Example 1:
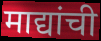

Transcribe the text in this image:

माद्यांची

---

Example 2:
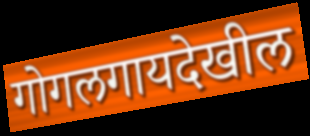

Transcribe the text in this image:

गोगलगायदेखील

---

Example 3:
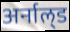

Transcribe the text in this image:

अर्नाल्ड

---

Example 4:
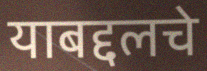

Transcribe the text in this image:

याबद्दलचे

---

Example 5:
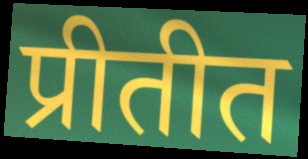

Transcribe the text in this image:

प्रीतीत